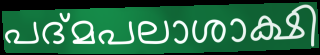
പദ്മപലാശാക്ഷി